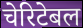
चेरिटेबल